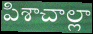
పిశాచాల్లా